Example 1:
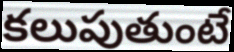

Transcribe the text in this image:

కలుపుతుంటే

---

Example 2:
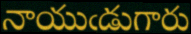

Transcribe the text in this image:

నాయుఁడుగారు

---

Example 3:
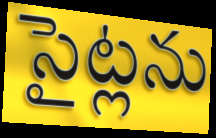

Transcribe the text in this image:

సైట్లను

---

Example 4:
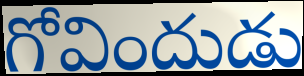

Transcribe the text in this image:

గోవిందుడు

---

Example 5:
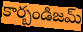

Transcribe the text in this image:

కార్బండిజమ్